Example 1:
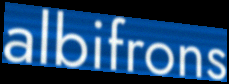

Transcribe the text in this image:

albifrons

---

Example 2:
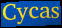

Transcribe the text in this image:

Cycas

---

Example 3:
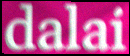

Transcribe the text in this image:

dalai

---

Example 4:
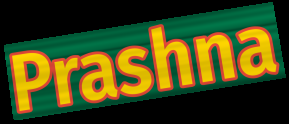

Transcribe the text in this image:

Prashna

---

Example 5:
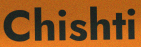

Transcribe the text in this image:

Chishti